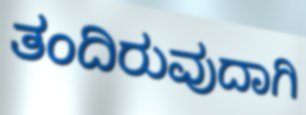
ತಂದಿರುವುದಾಗಿ